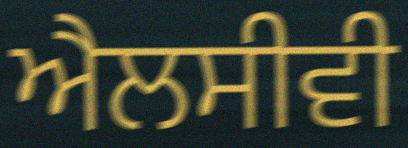
ਐਲਸੀਵੀ